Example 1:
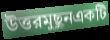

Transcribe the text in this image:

উত্তরমুছুনএকটি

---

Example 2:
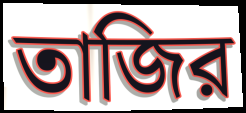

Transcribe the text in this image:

তাজির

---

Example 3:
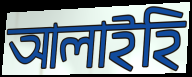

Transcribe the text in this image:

আলাইহি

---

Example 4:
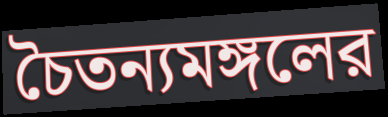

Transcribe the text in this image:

চৈতন্যমঙ্গলের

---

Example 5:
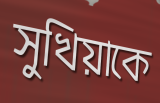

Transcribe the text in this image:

সুখিয়াকে